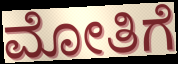
ಮೋತಿಗೆ